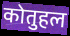
कोतुहल